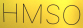
HMSO